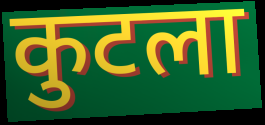
कुटला